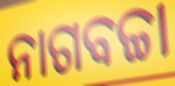
ନାଗବଚ୍ଚା